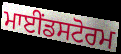
ਮਾਈਂਡਸਟੋਰਮ